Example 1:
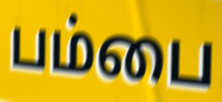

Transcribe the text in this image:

பம்பை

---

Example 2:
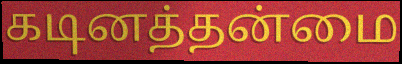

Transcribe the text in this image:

கடினத்தன்மை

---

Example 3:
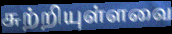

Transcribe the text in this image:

சுற்றியுள்ளவை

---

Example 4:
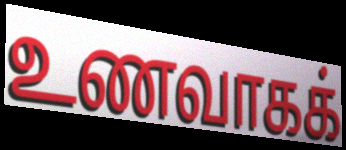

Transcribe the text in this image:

உணவாகக்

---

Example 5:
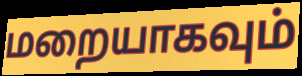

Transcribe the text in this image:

மறையாகவும்